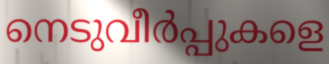
നെടുവീർപ്പുകളെ